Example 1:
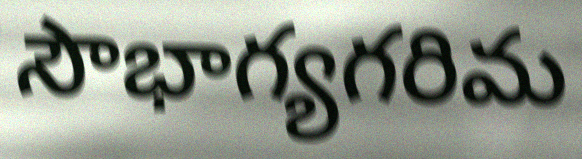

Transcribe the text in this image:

సౌభాగ్యగరిమ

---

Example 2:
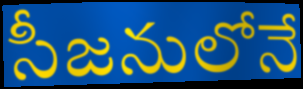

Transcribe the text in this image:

సీజనులోనే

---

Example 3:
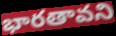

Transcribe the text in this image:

భారతావని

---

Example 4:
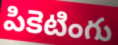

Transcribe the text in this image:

పికెటింగు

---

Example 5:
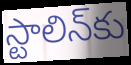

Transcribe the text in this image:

స్టాలిన్‌కు